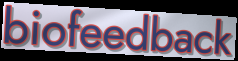
biofeedback